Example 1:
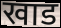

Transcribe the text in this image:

खाड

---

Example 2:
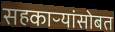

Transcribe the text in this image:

सहकाऱ्यांसोबत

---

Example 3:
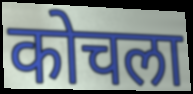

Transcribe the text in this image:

कोचला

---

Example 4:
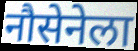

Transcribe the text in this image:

नौसेनेला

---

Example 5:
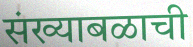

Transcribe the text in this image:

संख्याबळाची